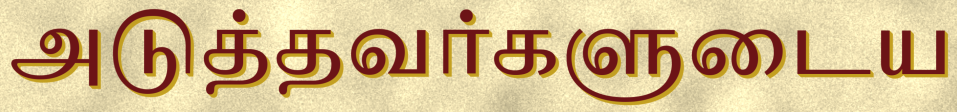
அடுத்தவர்களுடைய